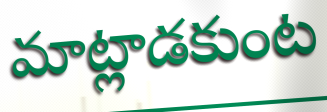
మాట్లాడకుంట